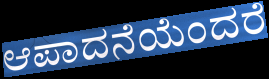
ಆಪಾದನೆಯೆಂದರೆ